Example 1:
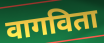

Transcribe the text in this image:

वागविता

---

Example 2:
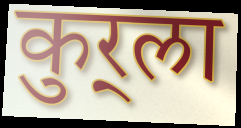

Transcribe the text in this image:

कुर्ला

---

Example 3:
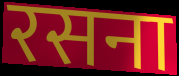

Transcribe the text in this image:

रसना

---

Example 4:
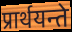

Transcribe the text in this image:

प्रार्थयन्ते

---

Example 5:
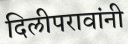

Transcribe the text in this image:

दिलीपरावांनी